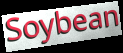
Soybean